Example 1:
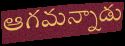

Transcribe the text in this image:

ఆగమన్నాడు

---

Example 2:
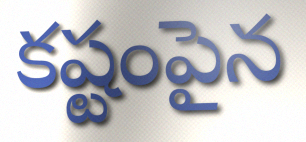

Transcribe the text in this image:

కష్టంపైన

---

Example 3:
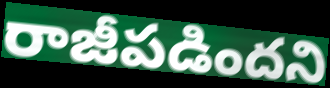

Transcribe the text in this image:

రాజీపడిందని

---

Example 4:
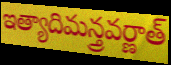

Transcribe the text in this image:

ఇత్యాదిమన్త్రవర్ణాత్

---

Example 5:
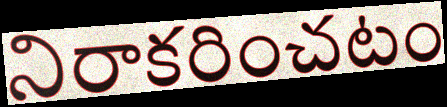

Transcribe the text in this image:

నిరాకరించటం